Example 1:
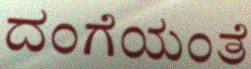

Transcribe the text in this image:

ದಂಗೆಯಂತೆ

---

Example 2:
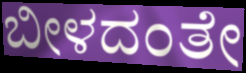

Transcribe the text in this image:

ಬೀಳದಂತೇ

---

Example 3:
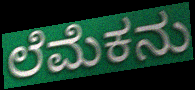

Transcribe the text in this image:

ಲೆಮೆಕನು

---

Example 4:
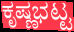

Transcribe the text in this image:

ಕೃಷ್ಣಭಟ್ಟ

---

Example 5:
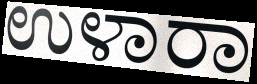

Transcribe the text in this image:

ಉಳಾರಾ